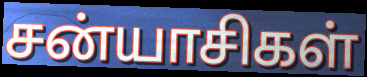
சன்யாசிகள்